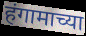
हंगामाच्या